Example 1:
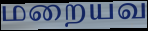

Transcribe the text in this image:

மறையவ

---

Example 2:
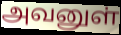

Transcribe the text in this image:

அவனுள்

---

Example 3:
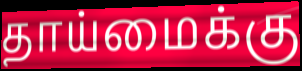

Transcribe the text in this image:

தாய்மைக்கு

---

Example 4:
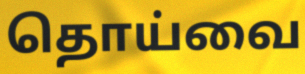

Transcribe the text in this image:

தொய்வை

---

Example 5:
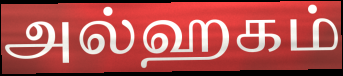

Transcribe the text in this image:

அல்ஹகம்